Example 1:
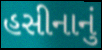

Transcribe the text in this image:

હસીનાનું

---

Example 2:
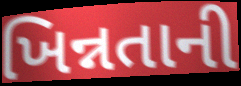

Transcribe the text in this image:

ખિન્નતાની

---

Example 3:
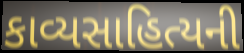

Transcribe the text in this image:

કાવ્યસાહિત્યની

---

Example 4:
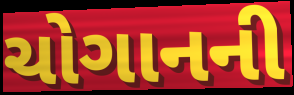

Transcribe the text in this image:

ચોગાનની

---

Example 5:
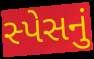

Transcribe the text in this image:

સ્પેસનું